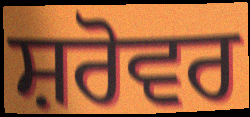
ਸ਼ਰੋਵਰ